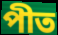
পীত